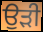
ਉਡ਼ੀ